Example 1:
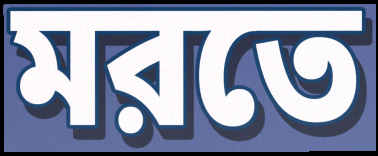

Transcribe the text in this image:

মরতে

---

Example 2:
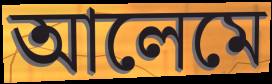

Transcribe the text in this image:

আলেমে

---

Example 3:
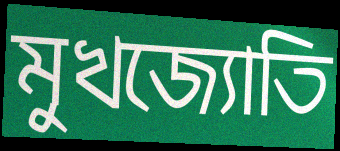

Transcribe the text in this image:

মুখজ্যোতি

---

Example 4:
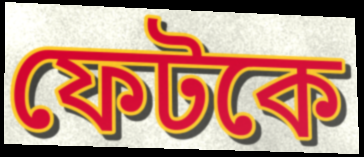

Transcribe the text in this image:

ফেটকে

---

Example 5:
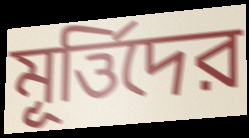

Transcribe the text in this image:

মূর্ত্তিদের